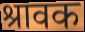
श्रावक